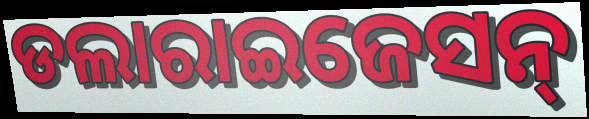
ଡଲାରାଇଜେସନ୍